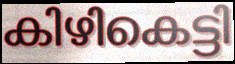
കിഴികെട്ടി